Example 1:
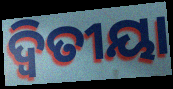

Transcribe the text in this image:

ଦ୍ୱିତୀୟା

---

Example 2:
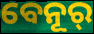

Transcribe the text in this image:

ବେନୂର୍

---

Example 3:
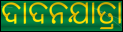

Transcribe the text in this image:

ଦାଦନଯାତ୍ରା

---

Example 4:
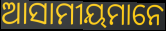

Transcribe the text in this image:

ଆସାମୀୟମାନେ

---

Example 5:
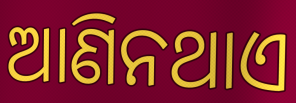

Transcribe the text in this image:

ଆଣିନଥାଏ